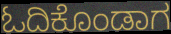
ಓದಿಕೊಂಡಾಗ